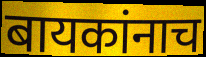
बायकांनाच